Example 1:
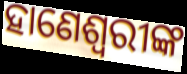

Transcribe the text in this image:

ହାଣେଶ୍ୱରୀଙ୍କ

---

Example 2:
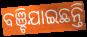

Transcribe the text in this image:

ବଞ୍ଚିଯାଇଛନ୍ତି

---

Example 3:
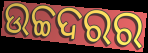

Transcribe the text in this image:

ଉଚ୍ଚଦରର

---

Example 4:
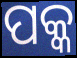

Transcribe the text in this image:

ପକ୍କ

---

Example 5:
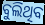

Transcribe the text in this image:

ବୁଲିଥିବ